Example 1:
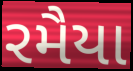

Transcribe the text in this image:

રમૈયા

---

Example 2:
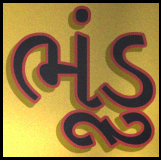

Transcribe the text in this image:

ભૂંડુ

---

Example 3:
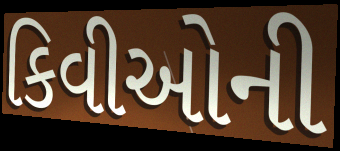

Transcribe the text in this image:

કિવીઓની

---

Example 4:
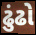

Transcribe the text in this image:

ઢુંઢો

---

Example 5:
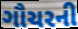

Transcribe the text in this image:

ગૌચરની